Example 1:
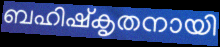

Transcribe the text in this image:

ബഹിഷ്കൃതനായി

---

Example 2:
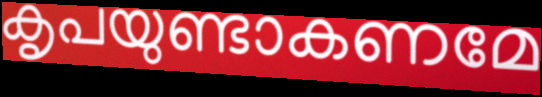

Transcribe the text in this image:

കൃപയുണ്ടാകണമേ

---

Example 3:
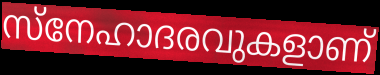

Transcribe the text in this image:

സ്നേഹാദരവുകളാണ്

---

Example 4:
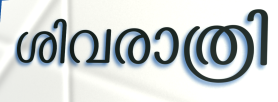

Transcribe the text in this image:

ശിവരാത്രി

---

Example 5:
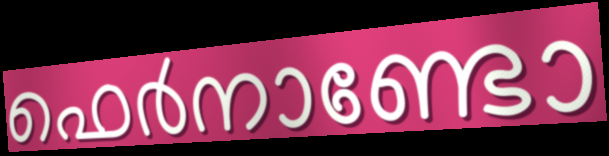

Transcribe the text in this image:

ഫെർനാണ്ടോ